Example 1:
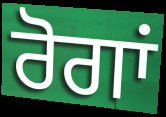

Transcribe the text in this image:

ਰੋਗਾਂ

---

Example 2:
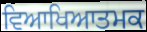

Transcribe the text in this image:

ਵਿਆਖਿਆਤਮਕ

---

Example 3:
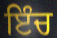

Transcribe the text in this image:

ਇੰਚ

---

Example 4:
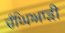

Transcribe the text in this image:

ਚੰਘਿਆੜੀ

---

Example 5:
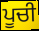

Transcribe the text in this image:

ਪੂਚੀ